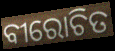
ବୀରୋଚିତ